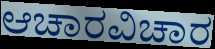
ಆಚಾರವಿಚಾರ